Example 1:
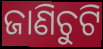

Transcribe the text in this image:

ଜାଣିଚୁଟି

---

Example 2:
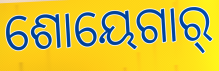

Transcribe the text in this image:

ଶୋୟେଗାର୍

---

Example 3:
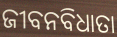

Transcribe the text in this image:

ଜୀବନବିଧାତା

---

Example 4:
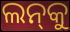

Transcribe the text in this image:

ଲନ୍‌କୁ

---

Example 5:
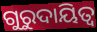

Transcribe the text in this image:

ଗୁରୁଦାୟିତ୍ଵ